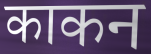
काकन